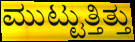
ಮುಟ್ಟುತ್ತಿತ್ತು